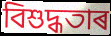
বিশুদ্ধতাৰ